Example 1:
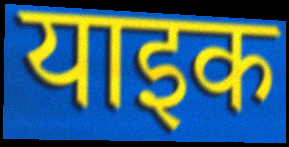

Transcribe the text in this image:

याइक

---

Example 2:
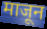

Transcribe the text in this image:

माजून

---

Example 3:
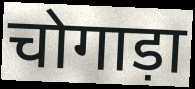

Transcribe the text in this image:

चोगाड़ा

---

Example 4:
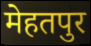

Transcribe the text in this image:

मेहतपुर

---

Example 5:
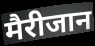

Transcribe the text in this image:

मैरीजान